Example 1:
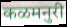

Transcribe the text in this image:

कळमनुरी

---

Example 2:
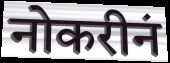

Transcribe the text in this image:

नोकरीनं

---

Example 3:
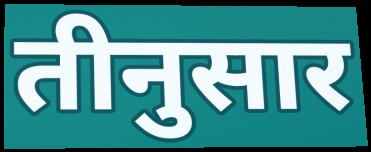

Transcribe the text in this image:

तीनुसार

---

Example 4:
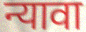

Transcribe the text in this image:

न्यावा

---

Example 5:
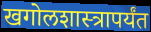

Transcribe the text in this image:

खगोलशास्त्रापर्यंत